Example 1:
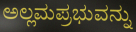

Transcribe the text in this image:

ಅಲ್ಲಮಪ್ರಭುವನ್ನು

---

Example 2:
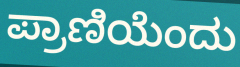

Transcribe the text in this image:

ಪ್ರಾಣಿಯೆಂದು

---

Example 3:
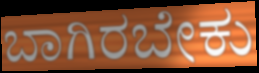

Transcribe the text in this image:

ಬಾಗಿರಬೇಕು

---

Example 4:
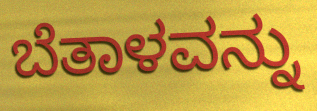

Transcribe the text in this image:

ಬೆತಾಳವನ್ನು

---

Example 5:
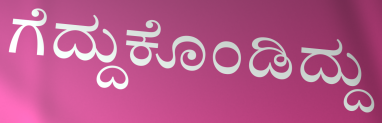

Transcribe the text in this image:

ಗೆದ್ದುಕೊಂಡಿದ್ದು